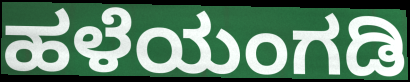
ಹಳೆಯಂಗಡಿ